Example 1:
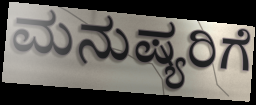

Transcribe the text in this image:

ಮನುಷ್ಯರಿಗೆ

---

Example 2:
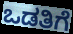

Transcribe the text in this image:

ಒಡತಿಗೆ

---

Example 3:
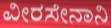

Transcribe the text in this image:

ವೀರಸೇನಾನಿ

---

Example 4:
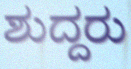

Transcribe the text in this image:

ಶುದ್ದರು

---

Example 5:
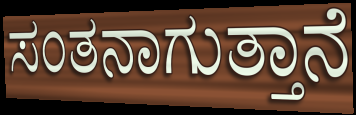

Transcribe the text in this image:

ಸಂತನಾಗುತ್ತಾನೆ